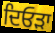
ਦਿਓੜਾ